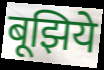
बूझिये